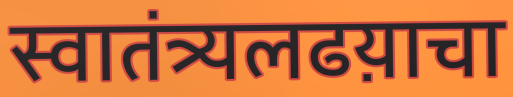
स्वातंत्र्यलढय़ाचा